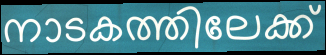
നാടകത്തിലേക്ക്